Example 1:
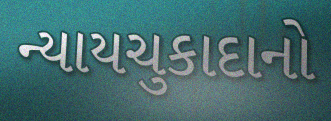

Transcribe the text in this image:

ન્યાયચુકાદાનો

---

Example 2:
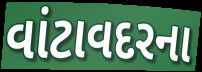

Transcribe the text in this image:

વાંટાવદરના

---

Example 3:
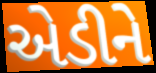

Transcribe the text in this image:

એડીને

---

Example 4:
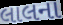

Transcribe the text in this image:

લાલના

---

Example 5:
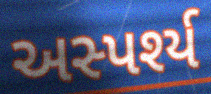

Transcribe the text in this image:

અસ્પર્શ્ય